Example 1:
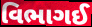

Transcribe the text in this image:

વિભાગઈ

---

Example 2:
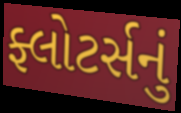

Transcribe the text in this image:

ફ્લોટર્સનું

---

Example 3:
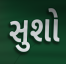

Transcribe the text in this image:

સુશો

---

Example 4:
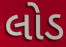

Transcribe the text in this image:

લોડ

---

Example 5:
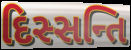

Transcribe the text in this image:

દિસ્સન્તિ